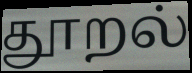
தூறல்